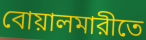
বোয়ালমারীতে